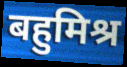
बहुमिश्र